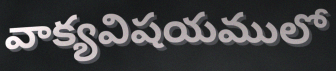
వాక్యవిషయములో